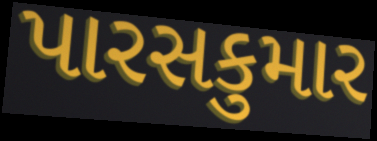
પારસકુમાર